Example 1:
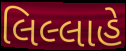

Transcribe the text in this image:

લિલ્લાહે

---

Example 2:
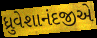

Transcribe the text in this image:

ધ્રુવેશાનંદજીએ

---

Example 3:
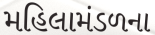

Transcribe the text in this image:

મહિલામંડળના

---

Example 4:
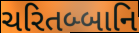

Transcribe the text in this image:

ચરિતબ્બાનિ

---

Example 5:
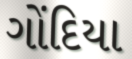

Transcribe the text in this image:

ગોંદિયા